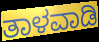
ತಾಳವಾಡಿ